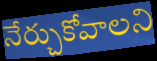
నేర్చుకోవాలని